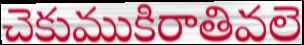
చెకుముకిరాతివలె